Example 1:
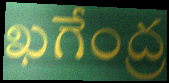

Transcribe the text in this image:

ఖగేంద్ర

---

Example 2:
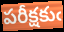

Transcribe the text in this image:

పరీక్షకుఁ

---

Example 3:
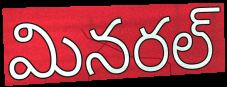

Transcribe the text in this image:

మినరల్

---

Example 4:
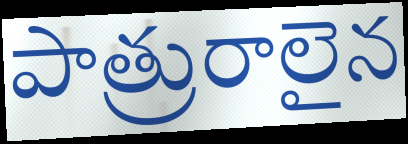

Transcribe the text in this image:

పాత్రురాలైన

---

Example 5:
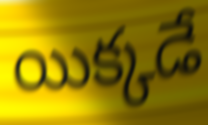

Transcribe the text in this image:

యిక్కడే